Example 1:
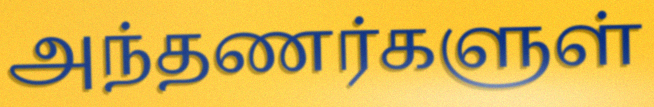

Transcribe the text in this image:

அந்தணர்களுள்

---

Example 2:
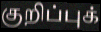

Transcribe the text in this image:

குறிப்புக்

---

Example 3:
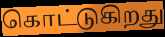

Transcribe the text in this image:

கொட்டுகிறது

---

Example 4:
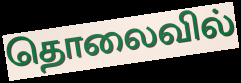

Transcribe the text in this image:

தொலைவில்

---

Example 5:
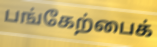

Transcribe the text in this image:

பங்கேற்பைக்